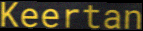
Keertan